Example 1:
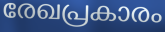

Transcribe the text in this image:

രേഖപ്രകാരം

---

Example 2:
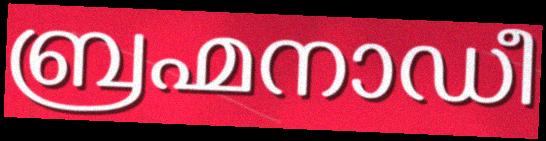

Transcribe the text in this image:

ബ്രഹ്മനാഡീ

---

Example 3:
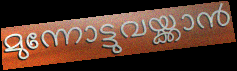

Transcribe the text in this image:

മുന്നോട്ടുവയ്ക്കാൻ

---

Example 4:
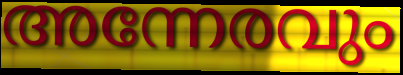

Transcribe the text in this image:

അന്നേരവും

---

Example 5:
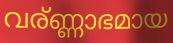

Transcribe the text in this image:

വര്ണ്ണാഭമായ